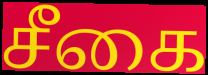
சீகை